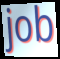
job